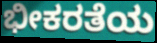
ಭೀಕರತೆಯ